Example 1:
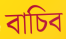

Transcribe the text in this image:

বাচিব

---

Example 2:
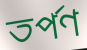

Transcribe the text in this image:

তৰ্পণ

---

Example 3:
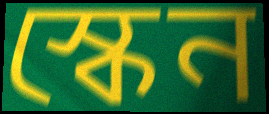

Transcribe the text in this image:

স্কেন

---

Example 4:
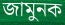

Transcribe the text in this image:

জামুনক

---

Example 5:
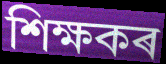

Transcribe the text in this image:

শিক্ষকৰ